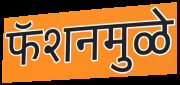
फॅशनमुळे